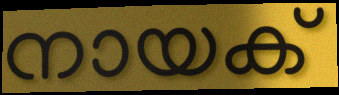
നായക്